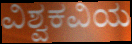
ವಿಶ್ವಕವಿಯ